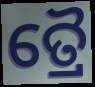
ତ୍ରୈ